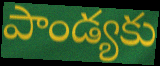
పాండ్యకు